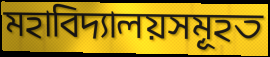
মহাবিদ্যালয়সমূহত